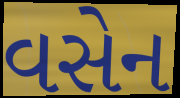
વસેન